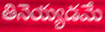
తినెయ్యడమే